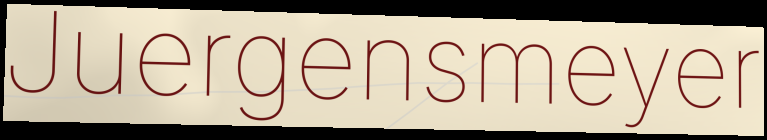
Juergensmeyer